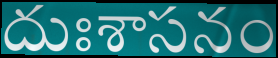
దుఃశాసనం